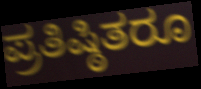
ಪ್ರತಿಷ್ಠಿತರೂ